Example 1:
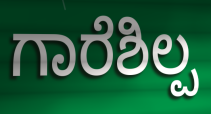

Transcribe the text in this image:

ಗಾರೆಶಿಲ್ಪ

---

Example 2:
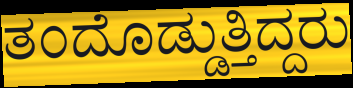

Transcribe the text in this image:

ತಂದೊಡ್ಡುತ್ತಿದ್ದರು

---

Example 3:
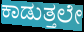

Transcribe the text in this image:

ಕಾಡುತ್ತಲೇ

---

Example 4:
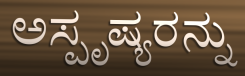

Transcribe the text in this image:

ಅಸ್ಪೃಷ್ಯರನ್ನು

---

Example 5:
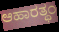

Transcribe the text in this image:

ಆಹಾರತ್ಥಂ